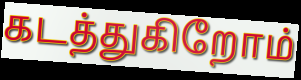
கடத்துகிறோம்